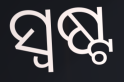
ସ୍ୱଷ୍ଟ